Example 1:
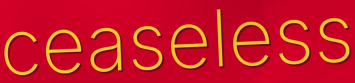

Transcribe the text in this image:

ceaseless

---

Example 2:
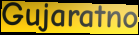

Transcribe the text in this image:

Gujaratno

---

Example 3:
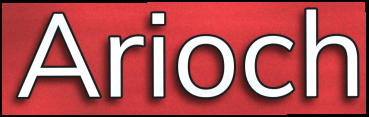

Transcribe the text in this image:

Arioch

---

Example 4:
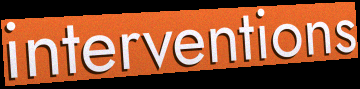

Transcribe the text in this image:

interventions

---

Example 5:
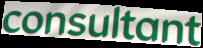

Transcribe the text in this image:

consultant